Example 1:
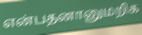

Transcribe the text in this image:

என்பதனானுமறிக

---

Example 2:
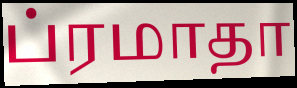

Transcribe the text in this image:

ப்ரமாதா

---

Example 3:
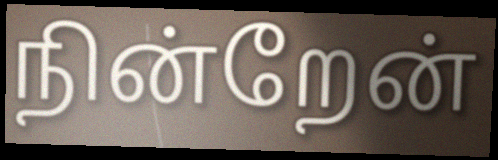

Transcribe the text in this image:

நின்றேன்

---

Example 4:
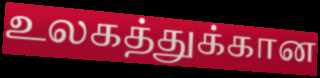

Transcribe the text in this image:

உலகத்துக்கான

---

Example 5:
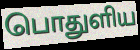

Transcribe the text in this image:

பொதுளிய